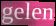
gelen